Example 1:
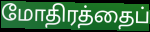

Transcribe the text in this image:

மோதிரத்தைப்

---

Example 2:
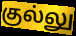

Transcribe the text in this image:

குல்லு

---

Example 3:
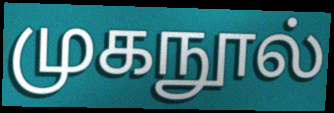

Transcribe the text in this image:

முகநூல்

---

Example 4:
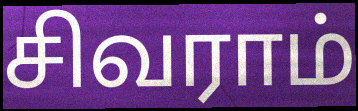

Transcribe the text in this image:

சிவராம்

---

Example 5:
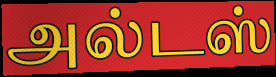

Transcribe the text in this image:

அல்டஸ்